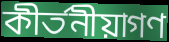
কীর্তনীয়াগণ